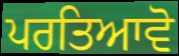
ਪਰਤਿਆਵੋ